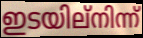
ഇടയില്നിന്ന്